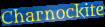
Charnockite